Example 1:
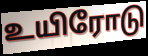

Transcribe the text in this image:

உயிரோடு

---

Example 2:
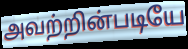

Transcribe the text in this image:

அவற்றின்படியே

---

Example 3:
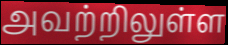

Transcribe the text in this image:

அவற்றிலுள்ள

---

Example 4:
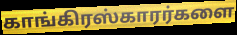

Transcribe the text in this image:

காங்கிரஸ்காரர்களை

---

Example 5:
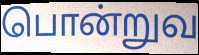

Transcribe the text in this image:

பொன்றுவ